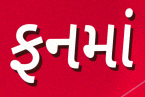
ફનમાં